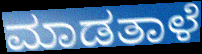
ಮಾಡತಾಳೆ